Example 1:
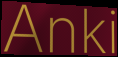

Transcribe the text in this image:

Anki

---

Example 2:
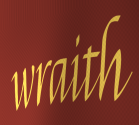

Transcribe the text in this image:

wraith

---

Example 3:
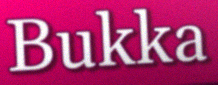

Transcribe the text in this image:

Bukka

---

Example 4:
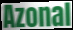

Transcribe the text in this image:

Azonal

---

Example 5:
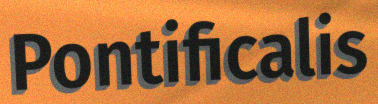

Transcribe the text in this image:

Pontificalis